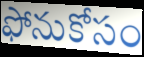
ఫోనుకోసం